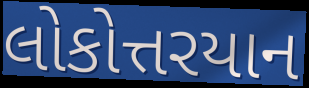
લોકોત્તરયાન